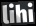
lihi